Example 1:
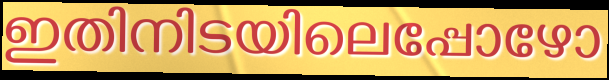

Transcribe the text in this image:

ഇതിനിടയിലെപ്പോഴോ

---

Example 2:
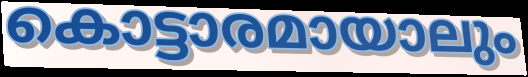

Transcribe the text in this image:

കൊട്ടാരമായാലും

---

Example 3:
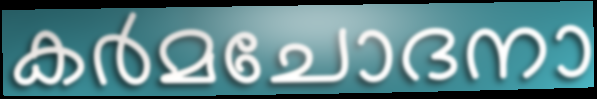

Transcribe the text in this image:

കർമചോദനാ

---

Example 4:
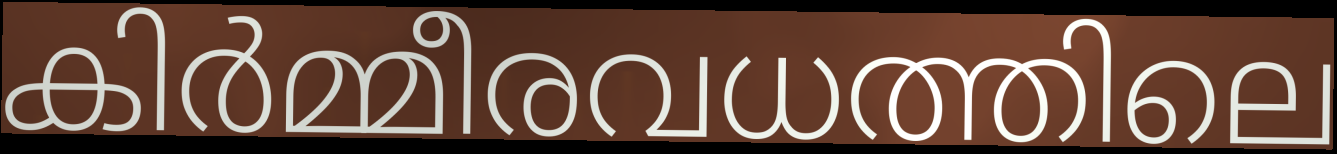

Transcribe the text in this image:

കിർമ്മീരവധത്തിലെ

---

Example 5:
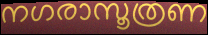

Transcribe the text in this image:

നഗരാസൂത്രണ